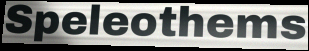
Speleothems